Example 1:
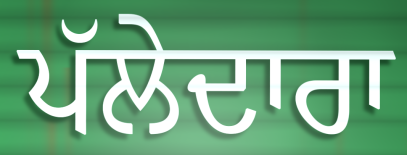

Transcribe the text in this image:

ਪੱਲੇਦਾਰਾ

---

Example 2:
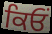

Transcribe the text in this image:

ਕਿਓਂ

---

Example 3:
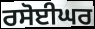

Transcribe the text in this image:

ਰਸੋਈਘਰ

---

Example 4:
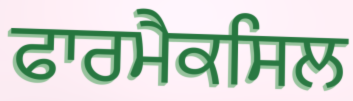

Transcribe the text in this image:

ਫਾਰਮੈਕਸਿਲ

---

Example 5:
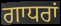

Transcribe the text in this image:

ਗਾਧਰਾਂ